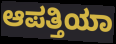
ಆಪತ್ತಿಯಾ